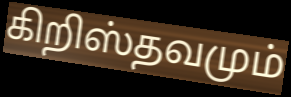
கிறிஸ்தவமும்